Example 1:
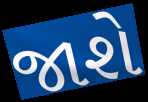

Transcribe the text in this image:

જાશે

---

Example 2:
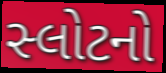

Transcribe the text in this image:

સ્લોટનો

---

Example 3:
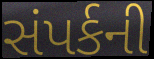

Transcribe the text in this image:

સંપર્કની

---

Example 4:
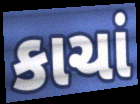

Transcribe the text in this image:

કાચાં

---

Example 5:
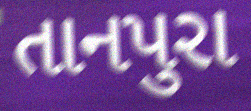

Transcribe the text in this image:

તાનપુરા